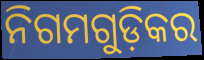
ନିଗମଗୁଡ଼ିକର